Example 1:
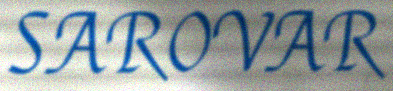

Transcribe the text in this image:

SAROVAR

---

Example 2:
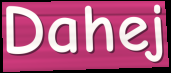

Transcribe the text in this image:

Dahej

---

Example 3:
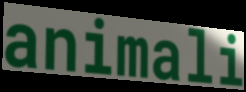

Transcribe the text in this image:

animali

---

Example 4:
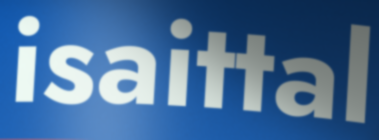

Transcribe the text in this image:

isaittal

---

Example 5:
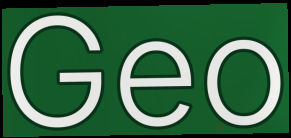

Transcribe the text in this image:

Geo